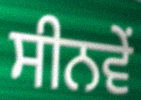
ਸੀਨਵੇਂ